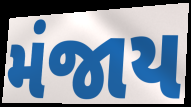
મંજાય